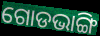
ଗୋଡଭାଙ୍ଗି